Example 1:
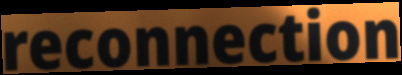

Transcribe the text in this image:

reconnection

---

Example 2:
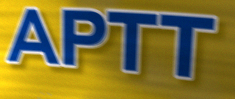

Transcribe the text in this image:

APTT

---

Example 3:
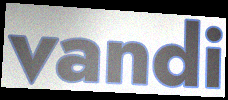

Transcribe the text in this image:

vandi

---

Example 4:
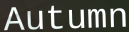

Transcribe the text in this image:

Autumn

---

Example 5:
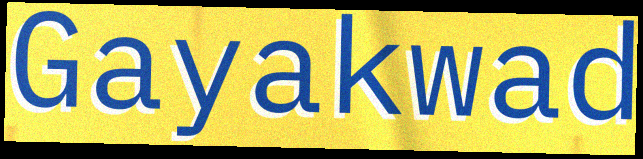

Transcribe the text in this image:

Gayakwad